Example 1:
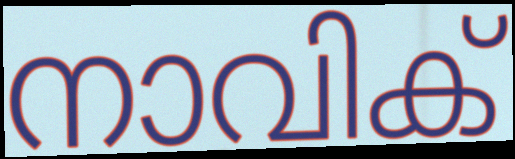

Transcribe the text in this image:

നാവിക്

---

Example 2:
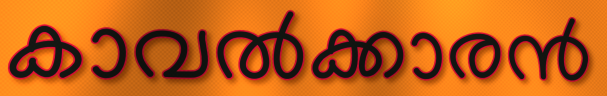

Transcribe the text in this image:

കാവൽക്കാരൻ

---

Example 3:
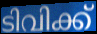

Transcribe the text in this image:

ടിവിക്ക്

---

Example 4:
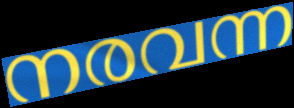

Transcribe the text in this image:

നരവന്ന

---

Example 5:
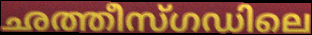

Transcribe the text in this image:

ഛത്തീസ്ഗഡിലെ